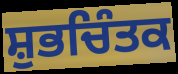
ਸ਼ੁਭਚਿੰਤਕ